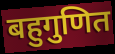
बहुगुणित